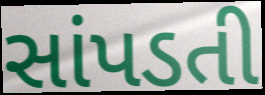
સાંપડતી